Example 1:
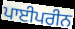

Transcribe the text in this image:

ਪਾਈਪਰੀਨ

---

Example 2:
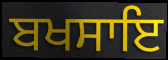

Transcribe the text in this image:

ਬਖਸਾਇ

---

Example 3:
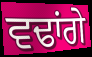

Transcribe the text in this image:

ਵਢਾਂਗੇ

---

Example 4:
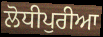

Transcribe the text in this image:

ਲੋਧੀਪੁਰੀਆ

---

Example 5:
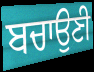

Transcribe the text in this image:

ਬਚਾਉਣੀ